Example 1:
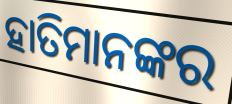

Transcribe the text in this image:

ହାତିମାନଙ୍କର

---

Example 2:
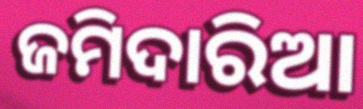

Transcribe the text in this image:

ଜମିଦାରିଆ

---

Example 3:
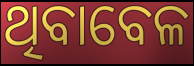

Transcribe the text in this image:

ଥିବାବେଳ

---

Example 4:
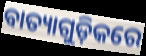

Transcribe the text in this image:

ବାତ୍ୟାଗୁଡ଼ିକରେ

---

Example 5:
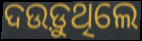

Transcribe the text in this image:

ଦଉଡ଼ୁଥିଲେ